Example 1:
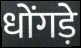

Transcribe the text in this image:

धोंगड़े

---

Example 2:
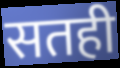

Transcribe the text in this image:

सतही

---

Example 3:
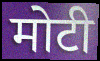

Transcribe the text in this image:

मोटी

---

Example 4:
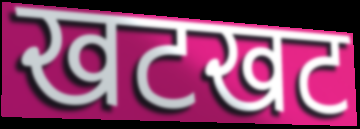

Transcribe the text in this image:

खटखट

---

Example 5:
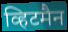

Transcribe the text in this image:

व्हिटमैन